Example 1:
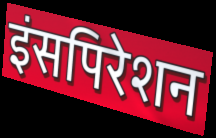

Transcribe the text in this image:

इंसपिरेशन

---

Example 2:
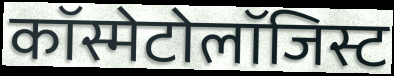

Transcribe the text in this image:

कॉस्मेटोलॉजिस्ट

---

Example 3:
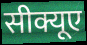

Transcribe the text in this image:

सीक्यूए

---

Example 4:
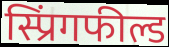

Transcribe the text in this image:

स्प्रिंगफील्ड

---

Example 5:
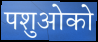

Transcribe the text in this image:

पशुओको